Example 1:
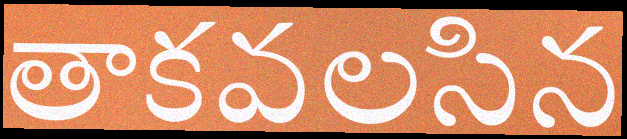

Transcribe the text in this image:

తాకవలసిన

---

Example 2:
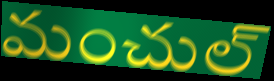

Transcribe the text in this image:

మంచుల్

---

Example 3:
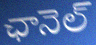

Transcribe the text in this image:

ఛానెల్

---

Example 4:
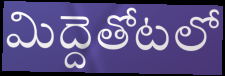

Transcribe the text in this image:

మిద్దెతోటలో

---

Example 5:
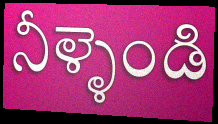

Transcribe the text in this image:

నీళ్ళెండి